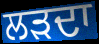
ਲੜਦਾ